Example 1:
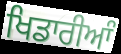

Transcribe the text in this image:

ਖਿਡਾਰੀਆੰ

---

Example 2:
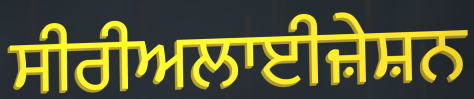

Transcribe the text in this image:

ਸੀਰੀਅਲਾਈਜ਼ੇਸ਼ਨ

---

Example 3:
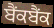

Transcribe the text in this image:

ਬੈਂਕਬੈਂਕ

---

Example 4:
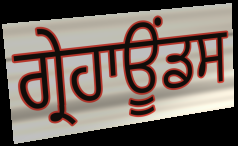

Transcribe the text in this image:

ਗ੍ਰੇਹਾਊਂਡਸ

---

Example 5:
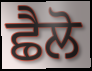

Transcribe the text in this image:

ਛੈਲੋ